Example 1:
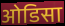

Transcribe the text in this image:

ओडिसा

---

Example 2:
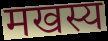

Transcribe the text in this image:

मखस्य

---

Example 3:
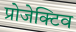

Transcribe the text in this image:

प्रोजेक्टिव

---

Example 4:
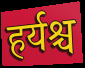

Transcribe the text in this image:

हर्यश्च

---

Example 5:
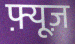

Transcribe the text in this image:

फ़्यूज़